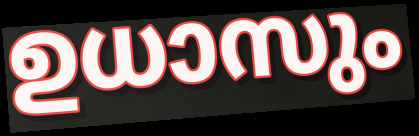
ഉധാസും